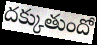
దక్కుతుందో